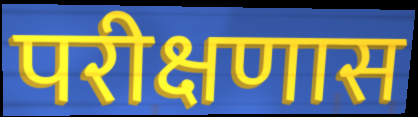
परीक्षणास